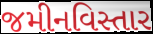
જમીનવિસ્તાર